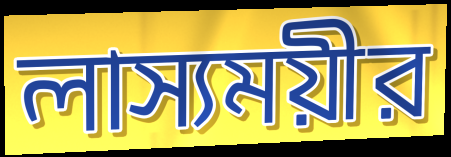
লাস্যময়ীর